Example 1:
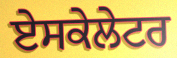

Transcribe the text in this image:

ਏਸਕੇਲੇਟਰ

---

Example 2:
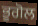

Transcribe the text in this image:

ਭੂਗੋਲ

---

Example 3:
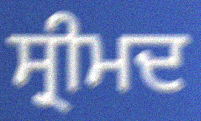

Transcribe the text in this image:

ਸ੍ਰੀਮਦ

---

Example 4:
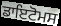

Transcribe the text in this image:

ਡਾਇਟੋਮਸ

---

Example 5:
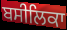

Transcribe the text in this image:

ਬਸੀਲਿਕਾ